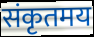
संकृतमय